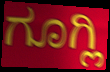
ಗೂಗ್ಲಿ